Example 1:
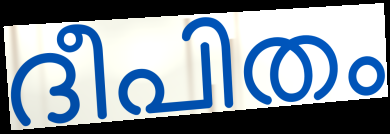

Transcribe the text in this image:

ദീപിതം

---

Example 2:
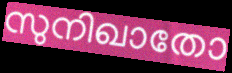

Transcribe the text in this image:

സുനിഖാതോ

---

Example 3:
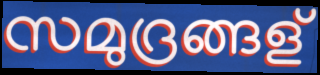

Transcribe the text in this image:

സമുദ്രങ്ങള്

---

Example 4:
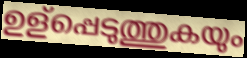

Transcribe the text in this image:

ഉള്പ്പെടുത്തുകയും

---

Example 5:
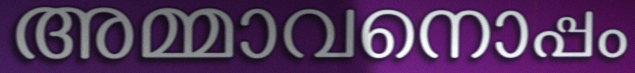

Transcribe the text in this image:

അമ്മാവനൊപ്പം